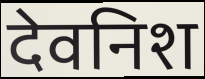
देवनिश